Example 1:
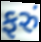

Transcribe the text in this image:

ફરું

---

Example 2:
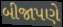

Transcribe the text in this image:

બીજાપણે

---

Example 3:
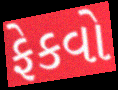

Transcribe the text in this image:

ફેકવો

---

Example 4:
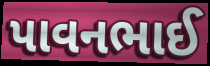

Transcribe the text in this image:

પાવનભાઈ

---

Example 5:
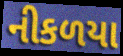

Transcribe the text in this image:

નીકળયા